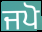
ਜਪੋ